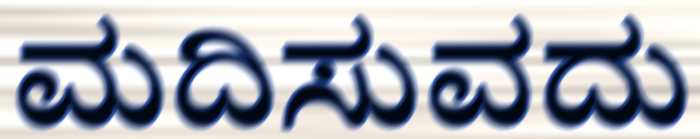
ಮದಿಸುವದು